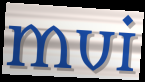
mui